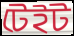
টেইট